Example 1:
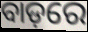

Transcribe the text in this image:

ବାଡ଼ରେ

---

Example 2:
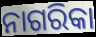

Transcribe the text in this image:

ନାଗରିକା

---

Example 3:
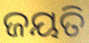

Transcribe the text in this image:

ଜୟତି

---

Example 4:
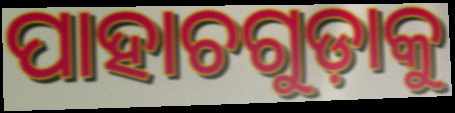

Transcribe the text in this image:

ପାହାଚଗୁଡ଼ାକୁ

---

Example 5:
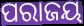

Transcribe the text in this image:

ପରାଜୟ